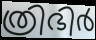
ത്രിഭിർ